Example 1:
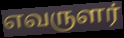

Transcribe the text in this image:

எவருளர்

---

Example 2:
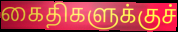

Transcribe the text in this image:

கைதிகளுக்குச்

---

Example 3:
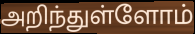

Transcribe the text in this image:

அறிந்துள்ளோம்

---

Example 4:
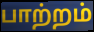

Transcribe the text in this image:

பாற்றம்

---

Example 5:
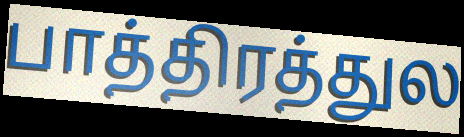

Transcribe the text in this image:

பாத்திரத்துல